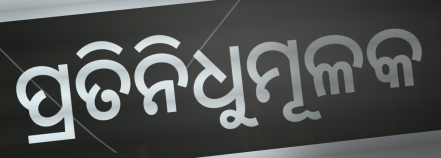
ପ୍ରତିନିଧୁମୂଳକ